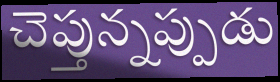
చెప్తున్నప్పుడు